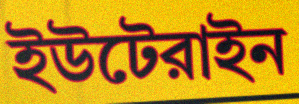
ইউটেরাইন